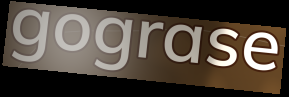
gograse